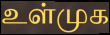
உள்முக